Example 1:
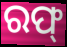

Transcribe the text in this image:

ରଫ୍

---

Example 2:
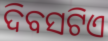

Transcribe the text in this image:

ଦିବସଟିଏ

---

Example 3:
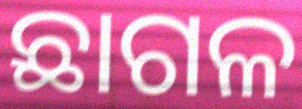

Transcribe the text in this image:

ଛାଗଳ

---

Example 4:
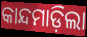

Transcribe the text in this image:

କାନ୍ଦମାଡ଼ିଲା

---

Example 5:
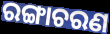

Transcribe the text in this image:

ରଙ୍ଗାଚରଣ